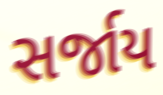
સર્જાય